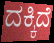
ದಕ್ಕಿದೆ